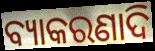
ବ୍ୟାକରଣାଦି